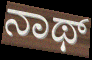
ನಾಥ್